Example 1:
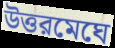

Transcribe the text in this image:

উত্তরমেঘে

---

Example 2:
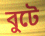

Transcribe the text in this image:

বুটে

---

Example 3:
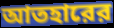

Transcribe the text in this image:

আতহারের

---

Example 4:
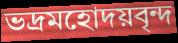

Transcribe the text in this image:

ভদ্রমহোদয়বৃন্দ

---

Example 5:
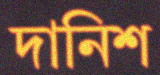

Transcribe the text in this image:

দানিশ